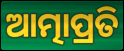
ଆତ୍ମାପ୍ରତି